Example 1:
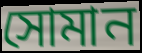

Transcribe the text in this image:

সোমান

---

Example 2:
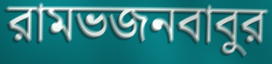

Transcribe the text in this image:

রামভজনবাবুর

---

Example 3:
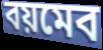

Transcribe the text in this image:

বয়মেব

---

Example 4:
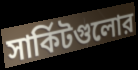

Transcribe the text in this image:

সার্কিটগুলোর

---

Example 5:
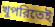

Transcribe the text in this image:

খুপরিতেই